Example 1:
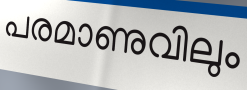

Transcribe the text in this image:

പരമാണുവിലും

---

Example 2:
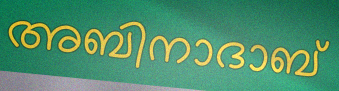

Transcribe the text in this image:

അബിനാദാബ്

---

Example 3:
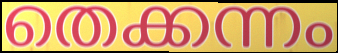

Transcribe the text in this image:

തെക്കന്നം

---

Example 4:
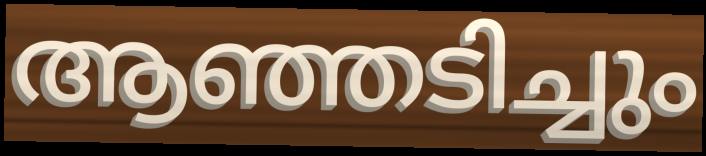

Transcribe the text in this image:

ആഞ്ഞടിച്ചും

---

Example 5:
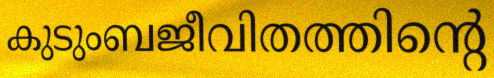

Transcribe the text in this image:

കുടുംബജീവിതത്തിന്റെ